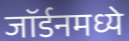
जॉर्डनमध्ये